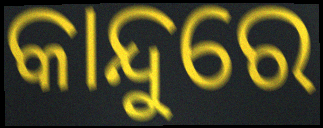
କାନ୍ଦୁରେ